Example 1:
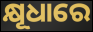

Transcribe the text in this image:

କ୍ଷୂଧାରେ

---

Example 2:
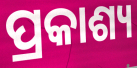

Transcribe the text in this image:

ପ୍ରକାଶ୍ୟ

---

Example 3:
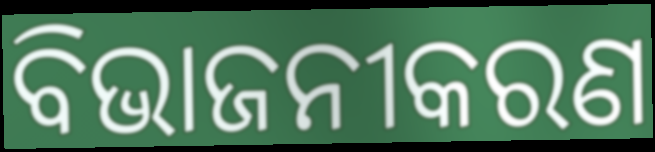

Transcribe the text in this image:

ବିଭାଜନୀକରଣ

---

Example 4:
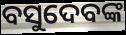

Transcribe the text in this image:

ବସୁଦେବଙ୍କ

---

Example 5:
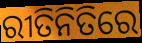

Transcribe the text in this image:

ରୀତିନିତିରେ